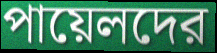
পায়েলদের